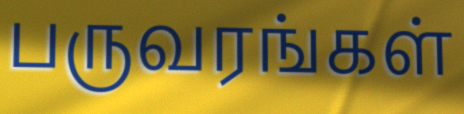
பருவரங்கள்